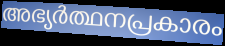
അഭ്യർത്ഥനപ്രകാരം